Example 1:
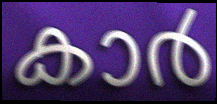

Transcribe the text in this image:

കാർ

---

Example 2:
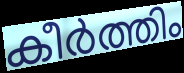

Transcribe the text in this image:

കീർത്തിം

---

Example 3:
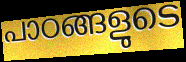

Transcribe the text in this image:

പാഠങ്ങളുടെ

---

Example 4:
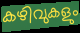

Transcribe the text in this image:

കഴിവുകളും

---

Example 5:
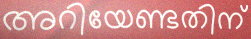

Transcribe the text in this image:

അറിയേണ്ടതിന്